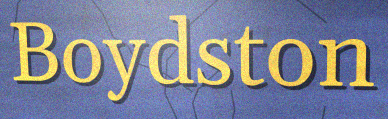
Boydston